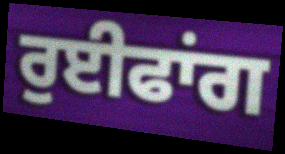
ਰੁਈਫਾਂਗ